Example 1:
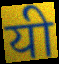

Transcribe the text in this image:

यी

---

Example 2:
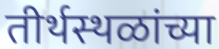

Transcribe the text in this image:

तीर्थस्थळांच्या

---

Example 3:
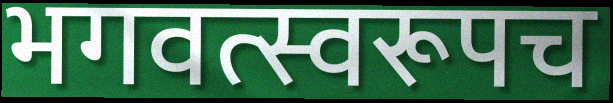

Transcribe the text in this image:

भगवत्स्वरूपच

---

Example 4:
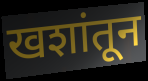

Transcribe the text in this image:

खशांतून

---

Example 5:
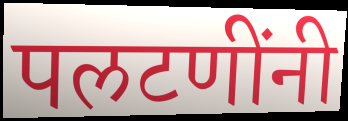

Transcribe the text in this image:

पलटणींनी